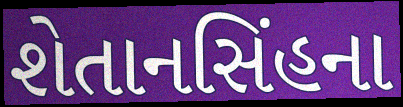
શેતાનસિંહના